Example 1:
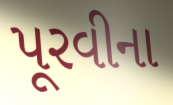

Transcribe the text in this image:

પૂરવીના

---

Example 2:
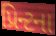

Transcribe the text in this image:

પ્રિન્ટના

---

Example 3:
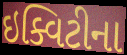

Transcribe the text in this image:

ઇક્વિટીના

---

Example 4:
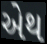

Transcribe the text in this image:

એથ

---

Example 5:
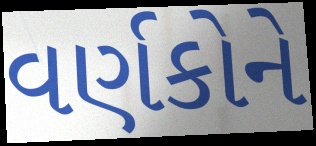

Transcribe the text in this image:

વર્ણકોને